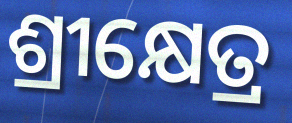
ଶ୍ରୀକ୍ଷେତ୍ର